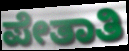
ಪೇತಾತಿ